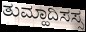
ತುಮ್ಹಾದಿಸಸ್ಸ